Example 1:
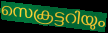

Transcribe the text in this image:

സെക്രട്ടറിയും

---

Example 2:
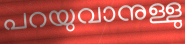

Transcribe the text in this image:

പറയുവാനുള്ളു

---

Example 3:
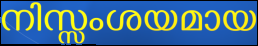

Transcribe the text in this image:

നിസ്സംശയമായ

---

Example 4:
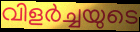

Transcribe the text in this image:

വിളർച്ചയുടെ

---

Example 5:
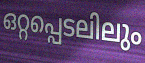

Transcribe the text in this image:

ഒറ്റപ്പെടലിലും